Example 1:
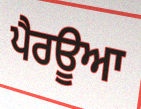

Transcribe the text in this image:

ਪੈਰਊਆ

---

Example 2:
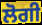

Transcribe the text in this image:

ਲੋਗੀ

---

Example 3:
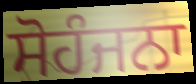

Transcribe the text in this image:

ਸੋਹੰਜਨਾ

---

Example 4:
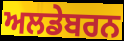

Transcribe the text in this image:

ਅਲਡੇਬਰਨ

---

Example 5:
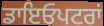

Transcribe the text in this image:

ਡਾਇਓਪਟਰਾਂ